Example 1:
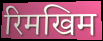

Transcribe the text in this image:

रिमखिम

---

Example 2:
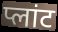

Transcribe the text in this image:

प्लांट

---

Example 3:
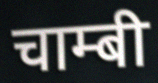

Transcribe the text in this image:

चाम्बी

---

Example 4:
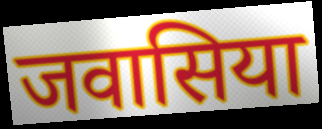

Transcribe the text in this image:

जवासिया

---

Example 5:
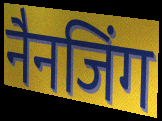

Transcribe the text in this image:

नैनजिंग